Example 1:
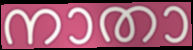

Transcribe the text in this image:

നാതാ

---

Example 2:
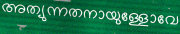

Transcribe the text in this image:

അത്യുന്നതനായുള്ളോവേ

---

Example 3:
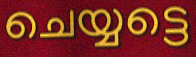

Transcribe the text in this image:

ചെയ്യട്ടെ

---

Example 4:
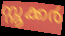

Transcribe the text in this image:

സ്നൂക്കർ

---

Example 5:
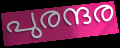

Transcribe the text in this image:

പുരന്ദര